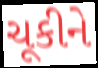
ચૂકીને